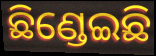
ଛିଣ୍ଡେଇଛି